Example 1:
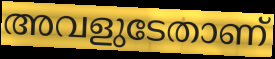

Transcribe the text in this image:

അവളുടേതാണ്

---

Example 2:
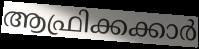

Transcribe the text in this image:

ആഫ്രിക്കക്കാർ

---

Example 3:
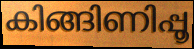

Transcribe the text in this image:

കിങ്ങിണിപ്പൂ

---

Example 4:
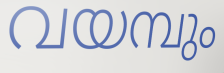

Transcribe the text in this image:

വയമ്പും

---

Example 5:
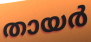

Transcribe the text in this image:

തായർ